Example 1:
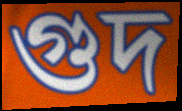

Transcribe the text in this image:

গুদ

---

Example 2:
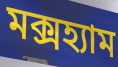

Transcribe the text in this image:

মক্সহ্যাম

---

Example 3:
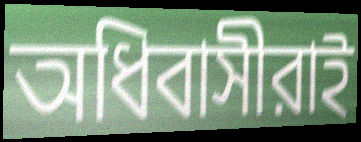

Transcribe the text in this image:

অধিবাসীরাই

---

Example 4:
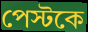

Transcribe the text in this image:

পেস্টকে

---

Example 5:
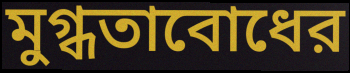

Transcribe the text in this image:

মুগ্ধতাবোধের